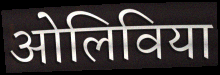
ओलिविया